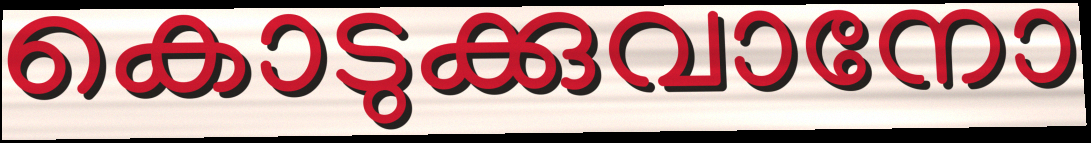
കൊടുക്കുവാനോ